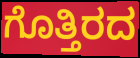
ಗೊತ್ತಿರದ